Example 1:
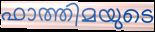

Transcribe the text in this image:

ഫാത്തിമയുടെ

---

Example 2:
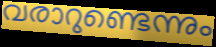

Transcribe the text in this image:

വരാറുണ്ടെന്നും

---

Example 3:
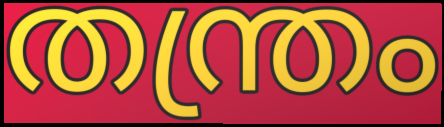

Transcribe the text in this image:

തന്ത്രം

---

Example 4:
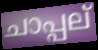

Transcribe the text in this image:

ചാപ്പല്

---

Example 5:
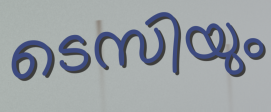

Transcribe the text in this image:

ടെസിയും